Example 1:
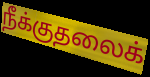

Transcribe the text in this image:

நீக்குதலைக்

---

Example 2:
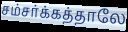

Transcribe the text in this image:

சம்சர்க்கத்தாலே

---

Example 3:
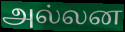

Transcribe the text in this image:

அல்லன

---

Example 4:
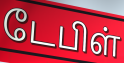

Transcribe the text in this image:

டேபிள்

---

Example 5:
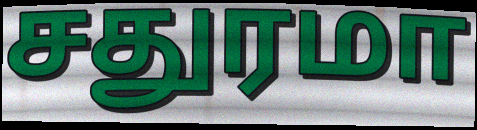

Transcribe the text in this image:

சதுரமா